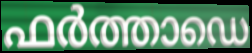
ഫർത്താഡെ